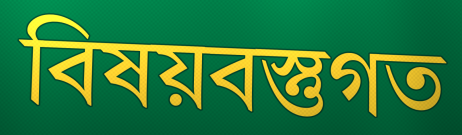
বিষয়বস্তুগত